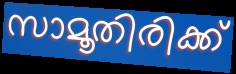
സാമൂതിരിക്ക്